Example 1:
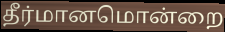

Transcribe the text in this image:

தீர்மானமொன்றை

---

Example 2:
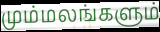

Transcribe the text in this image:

மும்மலங்களும்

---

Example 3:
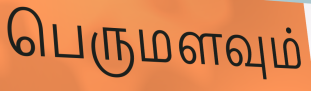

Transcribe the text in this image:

பெருமளவும்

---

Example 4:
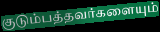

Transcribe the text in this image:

குடும்பத்தவர்களையும்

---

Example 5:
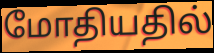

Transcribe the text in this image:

மோதியதில்